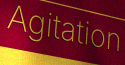
Agitation